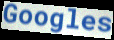
Googles